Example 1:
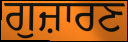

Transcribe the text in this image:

ਗੁਜ਼ਾਰਣ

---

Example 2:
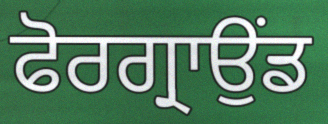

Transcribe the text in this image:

ਫੋਰਗ੍ਰਾਉਂਡ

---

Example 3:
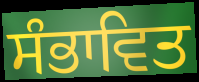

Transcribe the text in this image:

ਸੰਭਾਵਿਤ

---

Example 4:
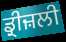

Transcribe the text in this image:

ਡ੍ਰੀਜ਼ਲੀ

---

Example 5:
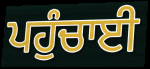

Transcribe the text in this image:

ਪਹੁੰਚਾਈ